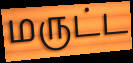
மருட்ட